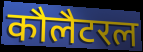
कौलैटरल